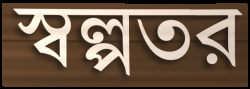
স্বল্পতর